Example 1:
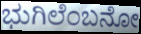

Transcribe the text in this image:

ಭುಗಿಲೆಂಬನೋ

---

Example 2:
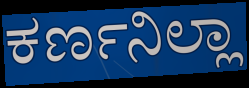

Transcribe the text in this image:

ಕರ್ಣನಿಲ್ಲಾ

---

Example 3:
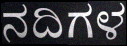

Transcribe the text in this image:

ನದಿಗಳ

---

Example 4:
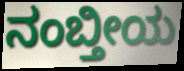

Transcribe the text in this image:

ನಂಬ್ತೀಯ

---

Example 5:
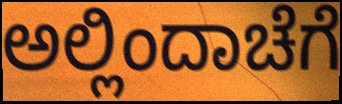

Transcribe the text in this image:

ಅಲ್ಲಿಂದಾಚೆಗೆ